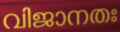
വിജാനതഃ